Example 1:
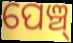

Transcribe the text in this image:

ପେଞ୍ଚ୍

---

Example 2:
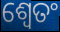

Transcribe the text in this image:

ଶ୍ଵେତଂ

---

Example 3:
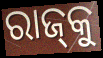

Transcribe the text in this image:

ରାଜ୍‍କୁ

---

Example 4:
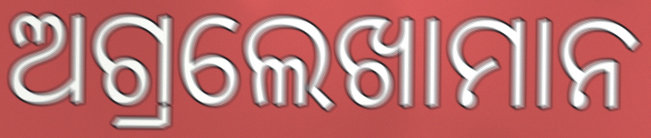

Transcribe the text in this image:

ଅଗ୍ରଲେଖାମାନ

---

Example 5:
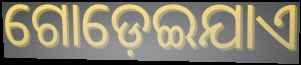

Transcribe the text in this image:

ଗୋଡ଼େଇଯାଏ